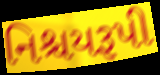
નિશ્ચયરૂપી